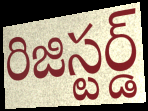
రిజిస్టర్డ్